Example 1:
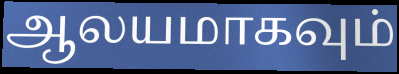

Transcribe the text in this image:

ஆலயமாகவும்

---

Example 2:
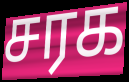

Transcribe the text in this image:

சரக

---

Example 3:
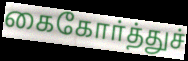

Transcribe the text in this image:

கைகோர்த்துச்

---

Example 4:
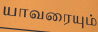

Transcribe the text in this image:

யாவரையும்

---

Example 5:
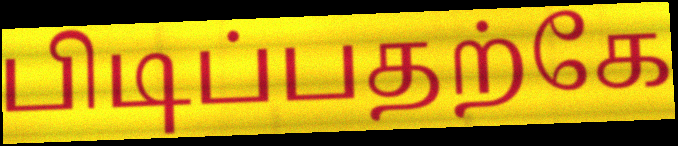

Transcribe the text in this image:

பிடிப்பதற்கே